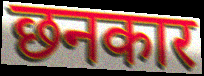
छनकार